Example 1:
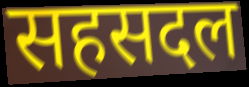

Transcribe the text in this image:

सहसदल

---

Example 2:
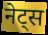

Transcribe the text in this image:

नेट्स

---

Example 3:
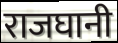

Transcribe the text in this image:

राजघानी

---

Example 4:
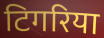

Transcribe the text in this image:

टिगरिया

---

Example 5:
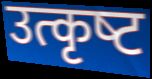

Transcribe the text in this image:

उत्‍कृष्‍ट